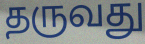
தருவது